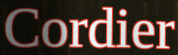
Cordier